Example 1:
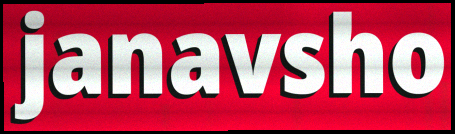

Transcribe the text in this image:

janavsho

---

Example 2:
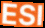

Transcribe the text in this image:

ESI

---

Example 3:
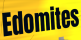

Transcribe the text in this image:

Edomites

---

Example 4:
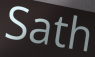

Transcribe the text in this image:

Sath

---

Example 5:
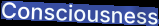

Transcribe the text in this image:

Consciousness